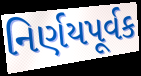
નિર્ણયપૂર્વક